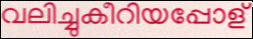
വലിച്ചുകീറിയപ്പോള്